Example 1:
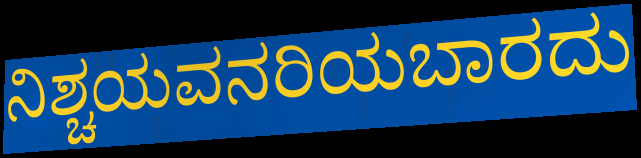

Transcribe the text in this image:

ನಿಶ್ಚಯವನರಿಯಬಾರದು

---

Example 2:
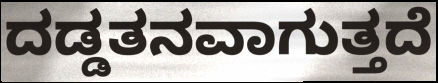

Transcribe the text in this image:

ದಡ್ಡತನವಾಗುತ್ತದೆ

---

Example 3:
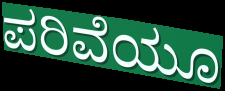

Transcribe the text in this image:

ಪರಿವೆಯೂ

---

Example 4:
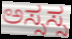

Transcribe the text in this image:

ಅಸ್ಸಸ್ಸ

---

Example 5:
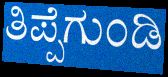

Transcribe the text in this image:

ತಿಪ್ಪೆಗುಂಡಿ